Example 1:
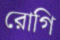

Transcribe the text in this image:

রোগি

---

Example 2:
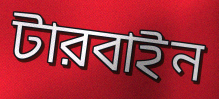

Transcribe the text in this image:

টারবাইন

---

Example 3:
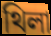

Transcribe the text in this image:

থিলা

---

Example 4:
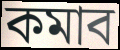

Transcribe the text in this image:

কমাব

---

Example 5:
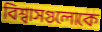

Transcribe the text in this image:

বিশ্বাসগুলোকে